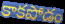
కాకపోడం